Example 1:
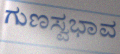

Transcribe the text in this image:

ಗುಣಸ್ವಭಾವ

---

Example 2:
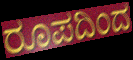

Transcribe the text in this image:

ರೂಪದಿಂದ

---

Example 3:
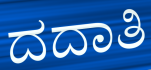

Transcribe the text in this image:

ದದಾತಿ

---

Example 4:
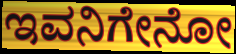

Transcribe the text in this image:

ಇವನಿಗೇನೋ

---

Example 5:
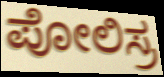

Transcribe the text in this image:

ಪೋಲಿಸ್ರ